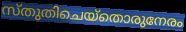
സ്തുതിചെയ്തൊരുനേരം